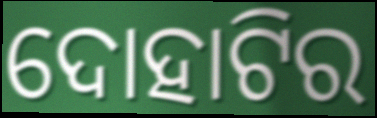
ଦୋହାଟିର